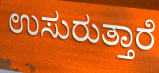
ಉಸುರುತ್ತಾರೆ